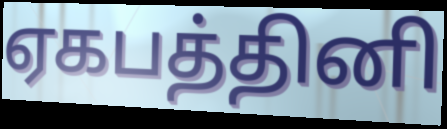
ஏகபத்தினி